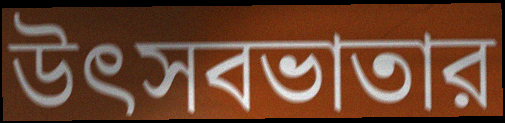
উৎসবভাতার